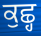
ਕੁਛ੍ਹ